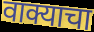
वाक्याचा